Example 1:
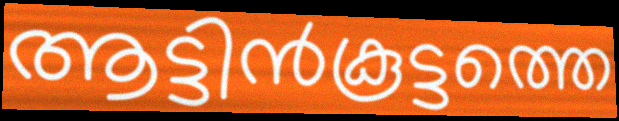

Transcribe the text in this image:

ആട്ടിൻകൂട്ടത്തെ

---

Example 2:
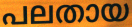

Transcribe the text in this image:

പലതായ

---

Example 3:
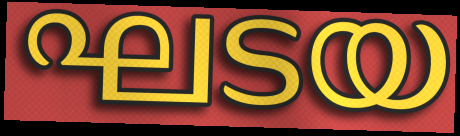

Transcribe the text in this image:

ഘടയ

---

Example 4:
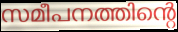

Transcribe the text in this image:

സമീപനത്തിന്റെ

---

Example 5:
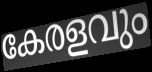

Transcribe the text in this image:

കേരളവും